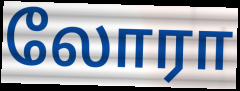
லோரா